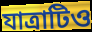
যাত্রাটিও